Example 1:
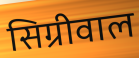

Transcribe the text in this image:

सिग्रीवाल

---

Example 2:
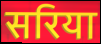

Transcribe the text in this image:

सरिया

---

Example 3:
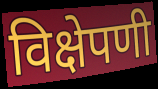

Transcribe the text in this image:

विक्षेपणी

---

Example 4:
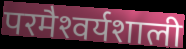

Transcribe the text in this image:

परमैश्वर्यशाली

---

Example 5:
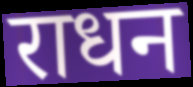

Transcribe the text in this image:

राधन